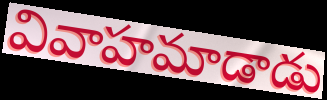
వివాహమాడాడు